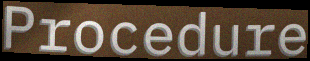
Procedure